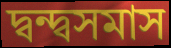
দ্বন্দ্বসমাস